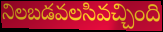
నిలబడవలసివచ్చింది